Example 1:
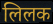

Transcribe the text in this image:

लिलक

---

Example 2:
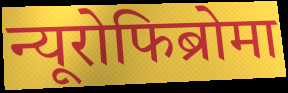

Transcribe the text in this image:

न्यूरोफिब्रोमा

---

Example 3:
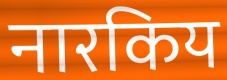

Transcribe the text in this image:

नारकिय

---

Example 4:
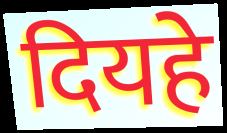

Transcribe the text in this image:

दियहे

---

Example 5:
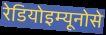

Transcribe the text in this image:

रेडियोइम्यूनोसे